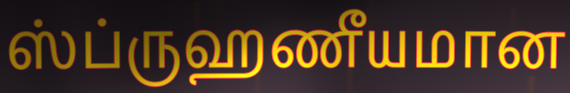
ஸ்ப்ருஹணீயமான